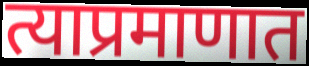
त्याप्रमाणात